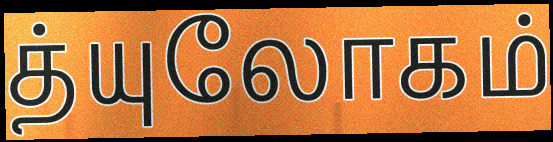
த்யுலோகம்